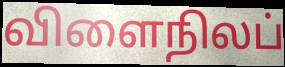
விளைநிலப்